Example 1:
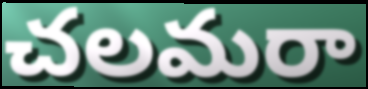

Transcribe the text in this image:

చలమరా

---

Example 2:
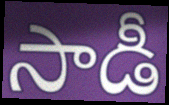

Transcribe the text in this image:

సాడీ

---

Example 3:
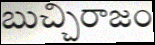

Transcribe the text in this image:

బుచ్చిరాజం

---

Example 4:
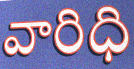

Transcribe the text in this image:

వారిధి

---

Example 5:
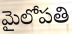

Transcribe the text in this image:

మైలోపతి